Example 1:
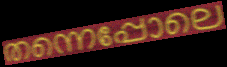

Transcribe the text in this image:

തന്നെപ്പോലെ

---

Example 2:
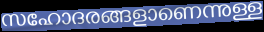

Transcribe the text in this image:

സഹോദരങ്ങളാണെന്നുള്ള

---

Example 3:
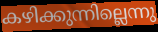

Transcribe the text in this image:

കഴിക്കുന്നില്ലെന്നു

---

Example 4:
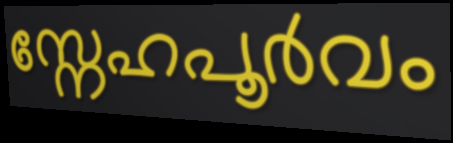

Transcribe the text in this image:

സ്നേഹപൂർവം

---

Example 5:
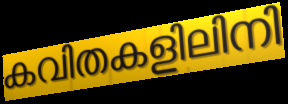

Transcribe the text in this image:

കവിതകളിലിനി